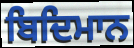
ਬਿਦਿਮਾਨ